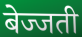
बेज्जती